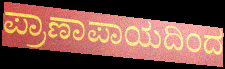
ಪ್ರಾಣಾಪಾಯದಿಂದ